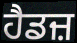
ਹੈਡਜ਼